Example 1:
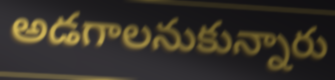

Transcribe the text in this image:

అడగాలనుకున్నారు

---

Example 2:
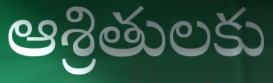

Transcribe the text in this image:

ఆశ్రితులకు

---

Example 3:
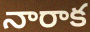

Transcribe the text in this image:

నారాక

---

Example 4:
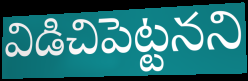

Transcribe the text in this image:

విడిచిపెట్టనని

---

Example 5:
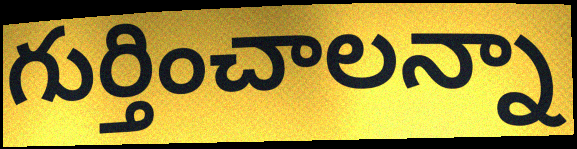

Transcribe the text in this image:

గుర్తించాలన్నా